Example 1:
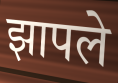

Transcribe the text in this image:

झापले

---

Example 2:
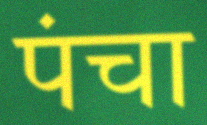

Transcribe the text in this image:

पंचा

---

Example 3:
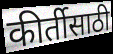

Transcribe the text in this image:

कीर्तीसाठी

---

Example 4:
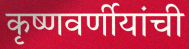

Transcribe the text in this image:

कृष्णवर्णीयांची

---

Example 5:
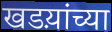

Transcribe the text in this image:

खडय़ांच्या